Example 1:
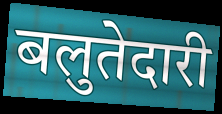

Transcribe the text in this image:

बलुतेदारी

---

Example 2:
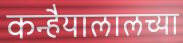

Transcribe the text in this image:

कन्हैयालालच्या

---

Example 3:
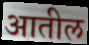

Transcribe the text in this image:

आतील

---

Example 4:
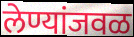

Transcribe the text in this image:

लेण्यांजवळ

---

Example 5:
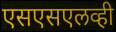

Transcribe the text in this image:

एसएसएलव्ही